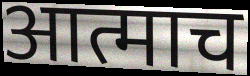
आत्माच